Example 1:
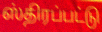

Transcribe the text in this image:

ஸ்திரப்பட்டு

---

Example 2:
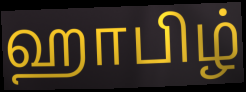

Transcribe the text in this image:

ஹாபிழ்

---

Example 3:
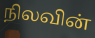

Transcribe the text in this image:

நிலவின்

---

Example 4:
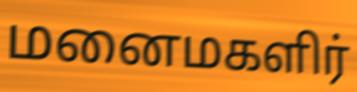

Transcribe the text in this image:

மனைமகளிர்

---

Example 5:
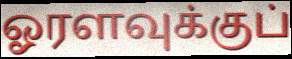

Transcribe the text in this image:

ஓரளவுக்குப்